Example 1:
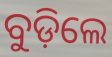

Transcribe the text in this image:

ବୁଡ଼ିଲେ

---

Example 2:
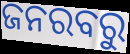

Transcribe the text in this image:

ଜନରବରୁ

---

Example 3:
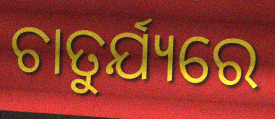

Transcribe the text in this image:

ଚାତୁର୍ଯ୍ୟରେ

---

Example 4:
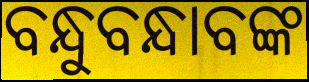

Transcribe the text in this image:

ବନ୍ଧୁବନ୍ଧାବଙ୍କ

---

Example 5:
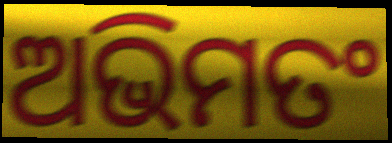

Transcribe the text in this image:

ଅଭିମତଂ